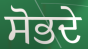
ਸੋਭਦੇ